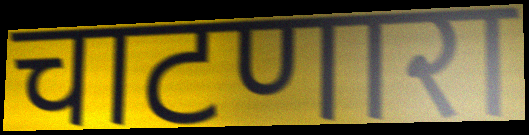
चाटणारा